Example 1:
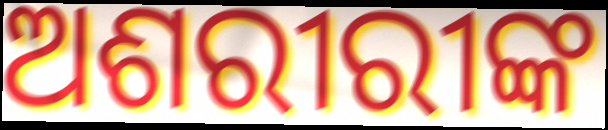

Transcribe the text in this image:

ଅଶରୀରୀଙ୍କ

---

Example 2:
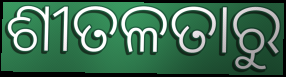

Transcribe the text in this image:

ଶୀତଳତାରୁ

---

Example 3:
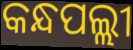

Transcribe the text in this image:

କନ୍ଧପଲ୍ଲୀ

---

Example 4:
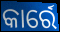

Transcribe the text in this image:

କାର୍ରେ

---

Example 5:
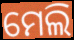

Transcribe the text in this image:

ମେଲି